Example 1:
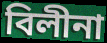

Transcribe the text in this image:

বিলীনা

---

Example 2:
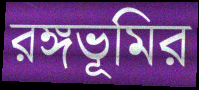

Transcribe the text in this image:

রঙ্গভূমির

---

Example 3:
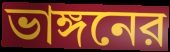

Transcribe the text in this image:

ভাঙ্গনের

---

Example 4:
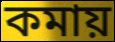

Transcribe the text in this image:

কমায়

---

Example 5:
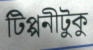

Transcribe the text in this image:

টিপ্পনীটুকু